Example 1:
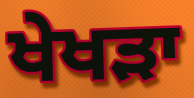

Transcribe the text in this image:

ਖੇਖੜਾ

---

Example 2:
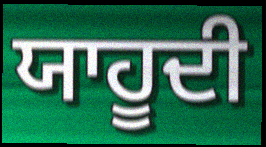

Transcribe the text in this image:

ਯਾਹੂਦੀ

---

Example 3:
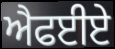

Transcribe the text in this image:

ਐਫਈਏ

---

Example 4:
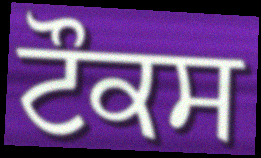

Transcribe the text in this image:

ਟੌਕਸ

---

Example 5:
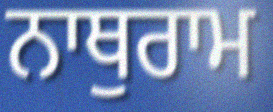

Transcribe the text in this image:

ਨਾਥੁਰਾਮ